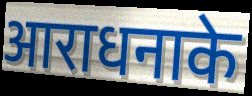
आराधनाके